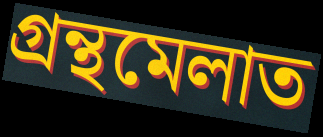
গ্ৰন্থমেলাত